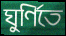
ঘুর্ণিতে